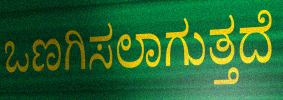
ಒಣಗಿಸಲಾಗುತ್ತದೆ